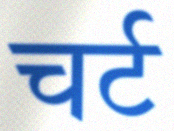
चर्ट